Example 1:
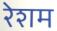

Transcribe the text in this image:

रेशम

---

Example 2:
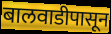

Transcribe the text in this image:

बालवाडीपासून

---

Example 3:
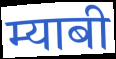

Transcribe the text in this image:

म्याबी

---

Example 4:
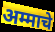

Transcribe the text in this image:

अम्माचे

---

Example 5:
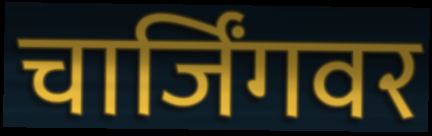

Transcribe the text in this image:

चार्जिंगवर